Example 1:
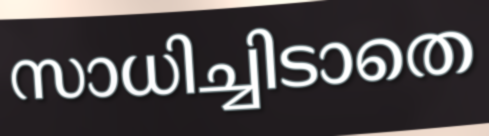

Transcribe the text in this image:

സാധിച്ചിടാതെ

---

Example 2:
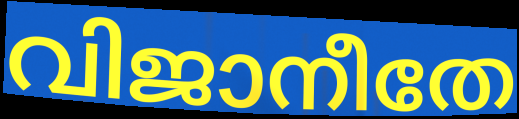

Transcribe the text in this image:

വിജാനീതേ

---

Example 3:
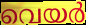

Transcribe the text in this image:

വെയർ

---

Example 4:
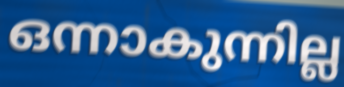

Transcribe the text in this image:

ഒന്നാകുന്നില്ല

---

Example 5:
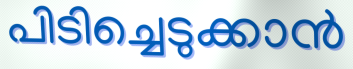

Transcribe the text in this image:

പിടിച്ചെടുക്കാൻ